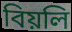
বিয়লি